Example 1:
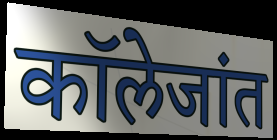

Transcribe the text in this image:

कॉलेजांत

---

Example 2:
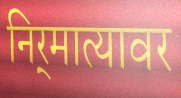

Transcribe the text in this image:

निर्मात्यावर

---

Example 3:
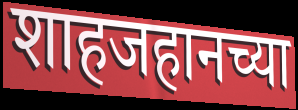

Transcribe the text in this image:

शाहजहानच्या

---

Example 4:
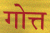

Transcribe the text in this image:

गोत्त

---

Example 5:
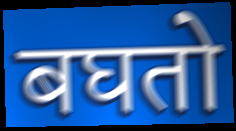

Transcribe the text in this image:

बघतो